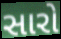
સારો